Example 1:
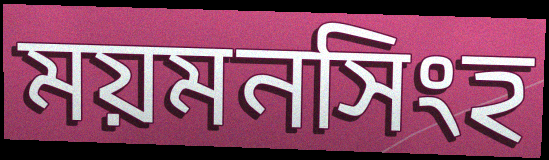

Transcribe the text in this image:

ময়মনসিংহ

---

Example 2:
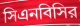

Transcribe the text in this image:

সিএনবিসির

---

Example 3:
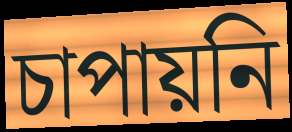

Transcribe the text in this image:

চাপায়নি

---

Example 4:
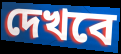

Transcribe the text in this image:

দেখবে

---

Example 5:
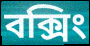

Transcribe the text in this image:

বক্সিং